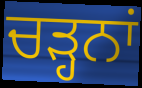
ਚੜ੍ਹਨਾਂ